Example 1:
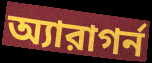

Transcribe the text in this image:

অ্যারাগর্ন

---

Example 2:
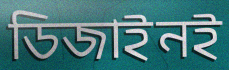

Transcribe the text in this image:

ডিজাইনই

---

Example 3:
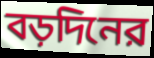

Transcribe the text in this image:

বড়দিনের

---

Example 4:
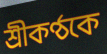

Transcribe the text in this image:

শ্রীকণ্ঠকে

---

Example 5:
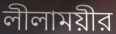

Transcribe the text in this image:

লীলাময়ীর